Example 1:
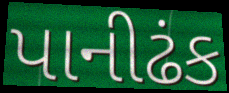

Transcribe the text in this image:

પાનીઢંક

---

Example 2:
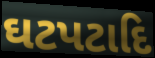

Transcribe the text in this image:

ઘટપટાદિ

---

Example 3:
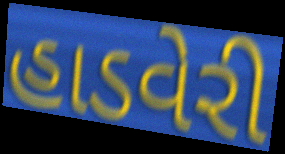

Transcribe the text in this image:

હાડવેરી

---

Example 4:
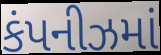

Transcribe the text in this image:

કંપનીઝમાં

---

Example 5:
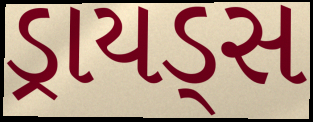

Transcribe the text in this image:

ડ્રાયડ્સ